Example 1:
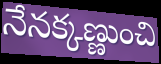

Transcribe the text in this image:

నేనక్కణ్ణుంచి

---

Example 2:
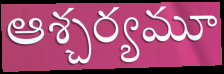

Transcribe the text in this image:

ఆశ్చర్యమూ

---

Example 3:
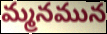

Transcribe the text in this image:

మ్మనమున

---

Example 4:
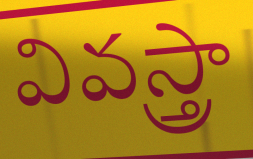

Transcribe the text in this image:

వివస్త్రా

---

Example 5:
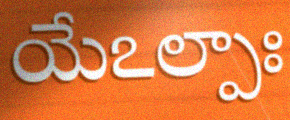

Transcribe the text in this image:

యేఽల్పాః